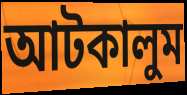
আটকালুম